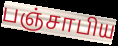
பஞ்சாபிய